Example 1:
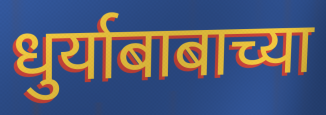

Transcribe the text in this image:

धुर्याबाबाच्या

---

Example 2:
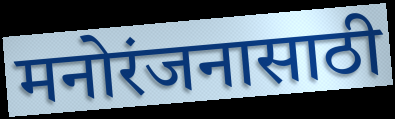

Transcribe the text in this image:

मनोरंजनासाठी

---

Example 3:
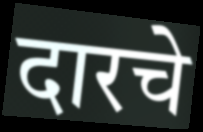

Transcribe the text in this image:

दारचे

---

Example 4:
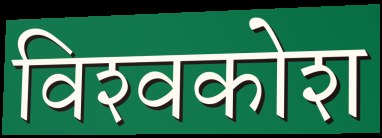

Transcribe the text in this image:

विश्वकोश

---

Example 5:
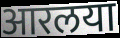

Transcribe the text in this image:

आरलया